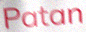
Patan